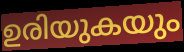
ഉരിയുകയും